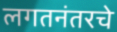
लगतनंतरचे